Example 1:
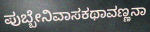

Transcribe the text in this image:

ಪುಬ್ಬೇನಿವಾಸಕಥಾವಣ್ಣನಾ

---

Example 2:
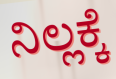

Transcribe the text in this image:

ನಿಲ್ಲಕ್ಕೆ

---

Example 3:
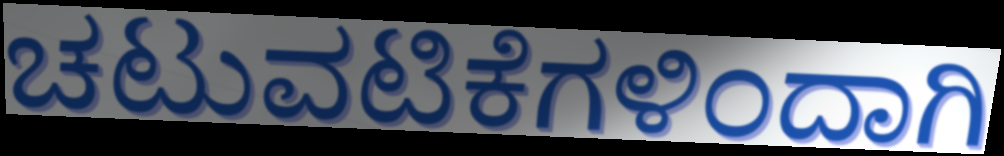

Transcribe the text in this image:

ಚಟುವಟಿಕೆಗಳಿಂದಾಗಿ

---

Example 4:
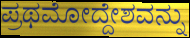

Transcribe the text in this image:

ಪ್ರಥಮೋದ್ದೇಶವನ್ನು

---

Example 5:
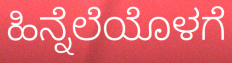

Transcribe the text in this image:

ಹಿನ್ನೆಲೆಯೊಳಗೆ